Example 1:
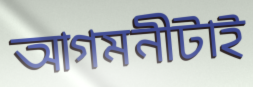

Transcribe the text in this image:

আগমনীটাই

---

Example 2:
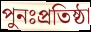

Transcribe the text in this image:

পুনঃপ্রতিষ্ঠা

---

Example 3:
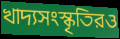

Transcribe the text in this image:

খাদ্যসংস্কৃতিরও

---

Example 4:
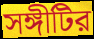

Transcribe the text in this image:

সঙ্গীটির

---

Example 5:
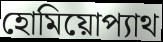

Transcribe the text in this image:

হোমিয়োপ্যাথ